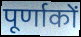
पूर्णाकों